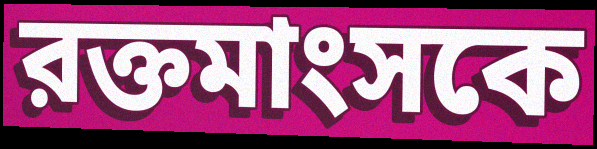
রক্তমাংসকে